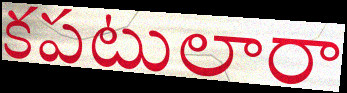
కపటులారా